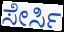
ಸೇರ್ಸಿ